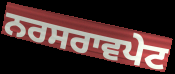
ਨਰਸਰਾਵਪੇਟ